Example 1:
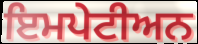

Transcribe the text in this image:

ਇਮਪੇਟੀਅਨ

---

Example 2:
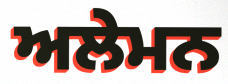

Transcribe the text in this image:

ਅਲੇਮਨ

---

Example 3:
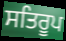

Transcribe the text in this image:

ਸਤਿਰੂਪ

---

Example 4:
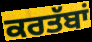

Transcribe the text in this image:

ਕਰਤੱਬਾਂ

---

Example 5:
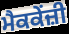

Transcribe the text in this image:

ਮੈਕਕੇਂਜ਼ੀ